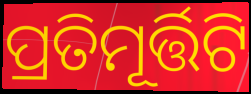
ପ୍ରତିମୂର୍ତ୍ତିଟି